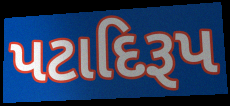
પટાદિરૂપ